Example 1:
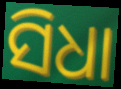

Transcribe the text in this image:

ସିଧା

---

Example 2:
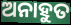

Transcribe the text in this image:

ଅନାହୁତ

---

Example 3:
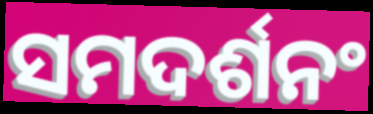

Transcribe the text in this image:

ସମଦର୍ଶନଂ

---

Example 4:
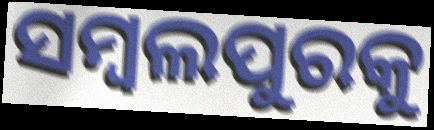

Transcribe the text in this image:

ସମ୍ୱଲପୁରକୁ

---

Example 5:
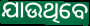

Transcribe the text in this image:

ଯାଉଥିବେ